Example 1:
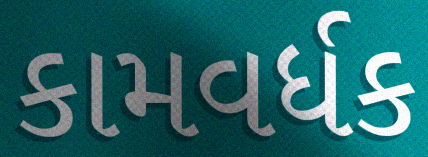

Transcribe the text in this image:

કામવર્ધક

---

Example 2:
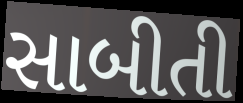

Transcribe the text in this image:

સાબીતી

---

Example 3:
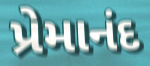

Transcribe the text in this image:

પ્રેમાનંદ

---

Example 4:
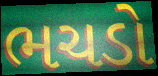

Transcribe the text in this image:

ભચડો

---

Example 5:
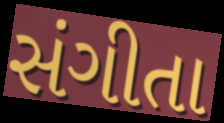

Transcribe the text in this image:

સંગીતા